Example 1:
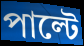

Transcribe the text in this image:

পাল্টে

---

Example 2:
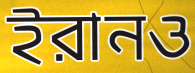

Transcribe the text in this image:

ইরানও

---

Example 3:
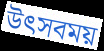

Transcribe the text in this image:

উৎসবময়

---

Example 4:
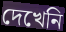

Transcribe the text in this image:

দেখেনি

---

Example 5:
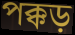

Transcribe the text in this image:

পক্কড়